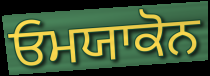
ਓਮਯਾਕੋਨ